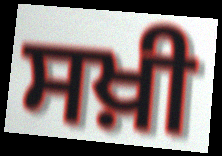
ਸਖ਼ੀ